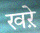
खऱे